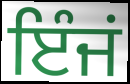
ਇੰਜਂ